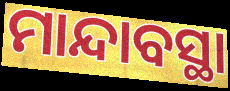
ମାନ୍ଦାବସ୍ଥା